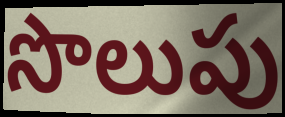
సొలుపు